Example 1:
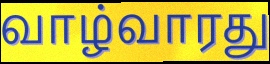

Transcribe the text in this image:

வாழ்வாரது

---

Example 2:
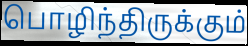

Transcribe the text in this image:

பொழிந்திருக்கும்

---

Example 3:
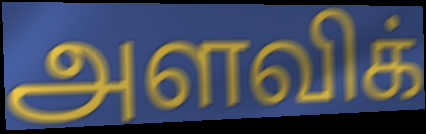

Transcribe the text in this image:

அளவிக்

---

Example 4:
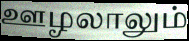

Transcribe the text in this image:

ஊழலாலும்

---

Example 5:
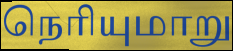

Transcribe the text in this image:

நெரியுமாறு